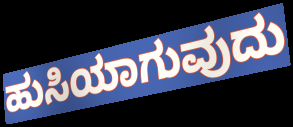
ಹುಸಿಯಾಗುವುದು